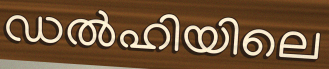
ഡൽഹിയിലെ